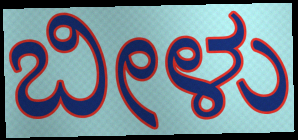
ಬೀಳು